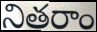
నితరాం